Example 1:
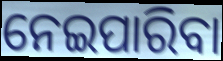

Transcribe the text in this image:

ନେଇପାରିବା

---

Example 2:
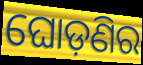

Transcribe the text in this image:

ଘୋଡ଼ଣିର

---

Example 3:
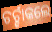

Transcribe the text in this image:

ଚର୍ଚ୍ଚାକଲେ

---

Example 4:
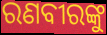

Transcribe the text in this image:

ରଣବୀରଙ୍କୁ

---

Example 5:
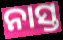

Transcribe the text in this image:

ନାସ୍ତ